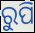
ରୁପି